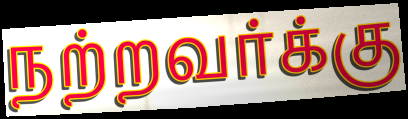
நற்றவர்க்கு